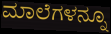
ಮಾಲೆಗಳನ್ನೂ